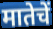
मातेचें